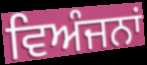
ਵਿਅੰਜਨਾਂ